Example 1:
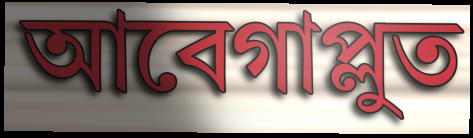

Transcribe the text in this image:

আবেগাপ্লুত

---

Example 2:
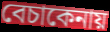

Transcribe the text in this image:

বেচাকেনায়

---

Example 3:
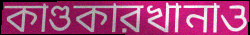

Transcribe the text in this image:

কাণ্ডকারখানাও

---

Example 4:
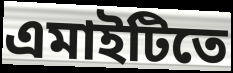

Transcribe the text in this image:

এমাইটিতে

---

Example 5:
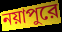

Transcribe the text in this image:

নয়াপুরে